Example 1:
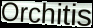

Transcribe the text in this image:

Orchitis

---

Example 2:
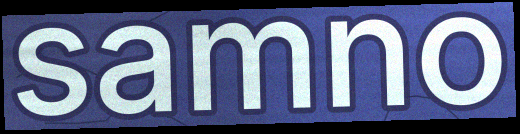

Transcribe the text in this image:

samno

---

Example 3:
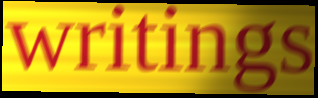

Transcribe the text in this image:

writings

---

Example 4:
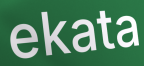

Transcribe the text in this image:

ekata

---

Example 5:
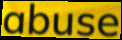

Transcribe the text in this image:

abuse